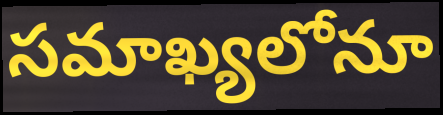
సమాఖ్యలోనూ